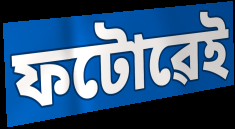
ফটোৱেই